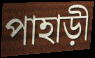
পাহাড়ী